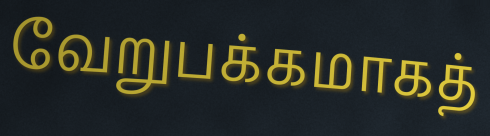
வேறுபக்கமாகத்